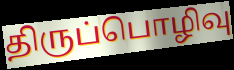
திருப்பொழிவு